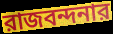
রাজবন্দনার